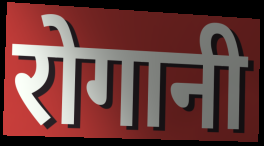
रोगानी